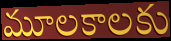
మూలకాలకు